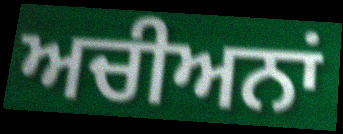
ਅਚੀਅਨਾਂ